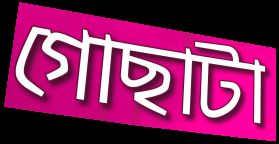
গোছাটা